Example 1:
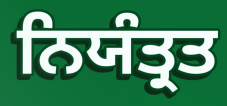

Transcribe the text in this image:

ਨਿਯੰਤ੍ਰਤ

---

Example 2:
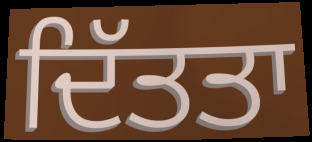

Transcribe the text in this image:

ਦਿੱਤਤਾ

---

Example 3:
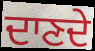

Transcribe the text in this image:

ਦਾਣਦੇ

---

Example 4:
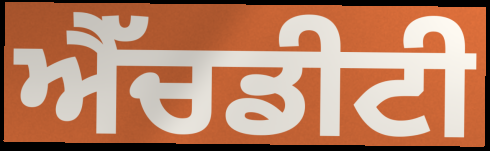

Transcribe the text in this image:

ਐੱਚਡੀਟੀ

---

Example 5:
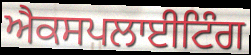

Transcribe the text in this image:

ਐਕਸਪਲਾਈਟਿੰਗ